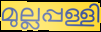
മുല്ലപ്പള്ളി